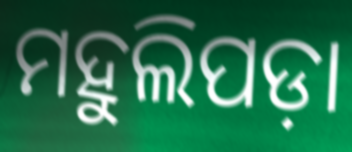
ମହୁଲିପଡ଼ା